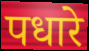
पधारे